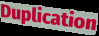
Duplication